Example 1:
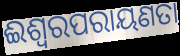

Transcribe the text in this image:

ଈଶ୍ୱରପରାୟଣତା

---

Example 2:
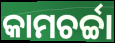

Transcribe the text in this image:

କାମଚର୍ଚ୍ଚା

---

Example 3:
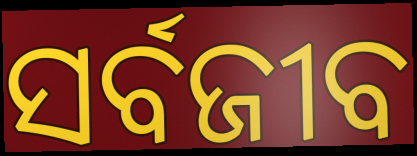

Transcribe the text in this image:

ସର୍ବଜୀବ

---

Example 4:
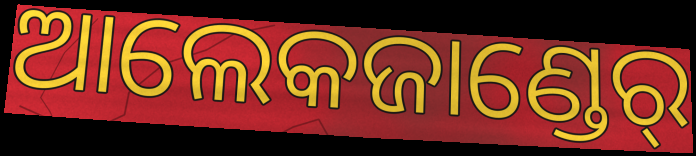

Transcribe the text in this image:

ଆଲେକଜାଣ୍ଡେର୍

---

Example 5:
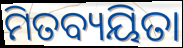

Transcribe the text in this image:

ମିତବ୍ୟୟିତା